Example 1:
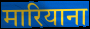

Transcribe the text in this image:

मारियाना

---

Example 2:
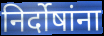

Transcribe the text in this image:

निर्दोषांना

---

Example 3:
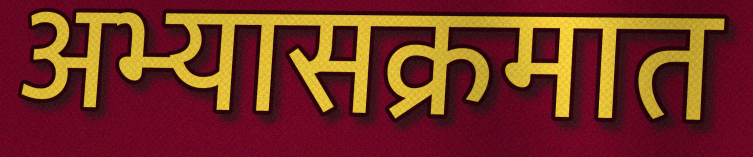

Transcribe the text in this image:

अभ्यासक्रमात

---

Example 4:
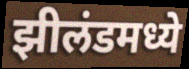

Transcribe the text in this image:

झीलंडमध्ये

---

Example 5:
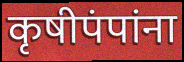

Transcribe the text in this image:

कृषीपंपांना